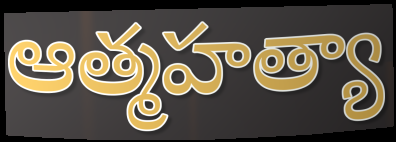
ఆత్మహత్యా